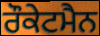
ਰੌਕੇਟਮੈਨ